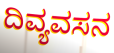
ದಿವ್ಯವಸನ